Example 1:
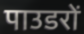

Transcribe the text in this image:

पाउडरों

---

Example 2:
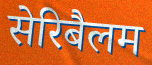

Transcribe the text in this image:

सेरिबैलम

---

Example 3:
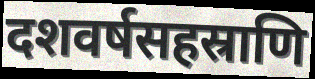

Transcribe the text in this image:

दशवर्षसहस्राणि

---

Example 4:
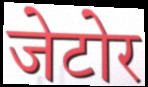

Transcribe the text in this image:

जेटोर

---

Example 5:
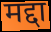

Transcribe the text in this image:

मद्दा